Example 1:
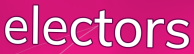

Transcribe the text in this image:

electors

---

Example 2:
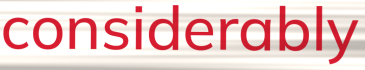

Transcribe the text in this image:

considerably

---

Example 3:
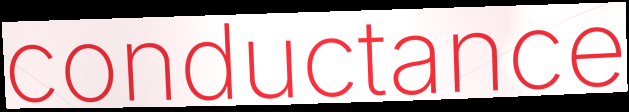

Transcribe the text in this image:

conductance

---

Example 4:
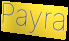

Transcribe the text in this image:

Payra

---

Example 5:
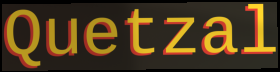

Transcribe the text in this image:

Quetzal